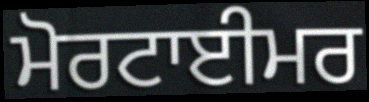
ਮੋਰਟਾਈਮਰ